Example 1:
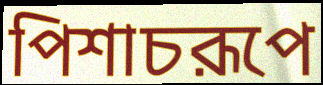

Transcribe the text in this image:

পিশাচরূপে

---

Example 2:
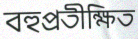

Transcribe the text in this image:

বহুপ্রতীক্ষিত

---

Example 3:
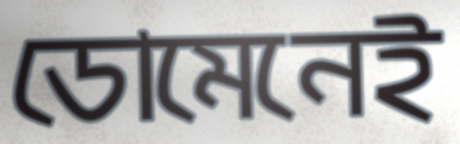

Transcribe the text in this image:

ডোমেনেই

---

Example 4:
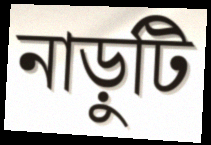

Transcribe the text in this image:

নাড়ুটি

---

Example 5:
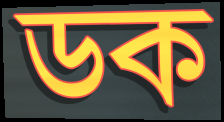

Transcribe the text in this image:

ডক